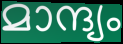
മാന്ദ്യം